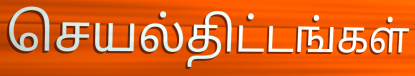
செயல்திட்டங்கள்